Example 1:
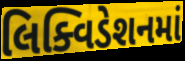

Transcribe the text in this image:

લિક્વિડેશનમાં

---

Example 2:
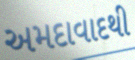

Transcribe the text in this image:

અમદાવાદથી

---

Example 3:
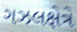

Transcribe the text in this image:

ગઝલક્ષેત્રે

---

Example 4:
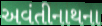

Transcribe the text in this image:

અવંતીનાથના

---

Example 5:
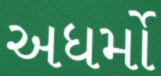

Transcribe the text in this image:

અધર્મો